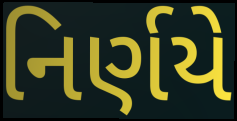
નિર્ણયે